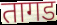
तागड